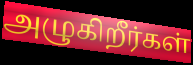
அழுகிறீர்கள்